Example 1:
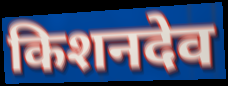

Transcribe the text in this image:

किशनदेव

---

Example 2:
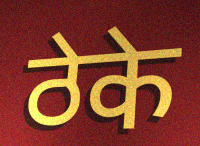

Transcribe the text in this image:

ठेके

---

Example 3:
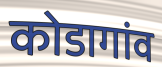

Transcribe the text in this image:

कोडागांव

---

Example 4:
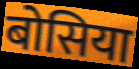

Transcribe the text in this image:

बोसिया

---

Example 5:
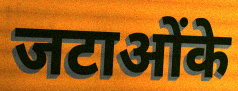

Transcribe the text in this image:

जटाओंके